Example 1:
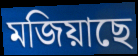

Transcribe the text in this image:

মজিয়াছে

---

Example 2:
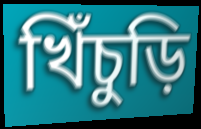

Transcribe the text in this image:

খিঁচুড়ি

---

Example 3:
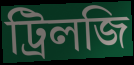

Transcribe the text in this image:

ট্রিলজি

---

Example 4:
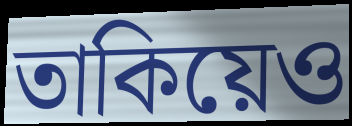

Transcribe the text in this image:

তাকিয়েও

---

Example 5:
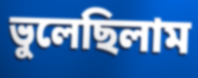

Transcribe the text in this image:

ভুলেছিলাম